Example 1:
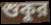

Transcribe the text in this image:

শুকুর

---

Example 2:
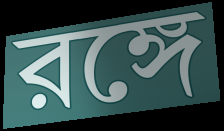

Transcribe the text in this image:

রঙ্গে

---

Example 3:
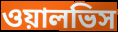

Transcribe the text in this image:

ওয়ালভিস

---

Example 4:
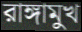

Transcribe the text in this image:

রাঙ্গামুখ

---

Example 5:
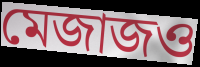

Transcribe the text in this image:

মেজাজও